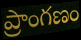
ప్రాంగణం